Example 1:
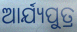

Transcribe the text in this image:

ଆର୍ଯ୍ୟପୁତ୍ର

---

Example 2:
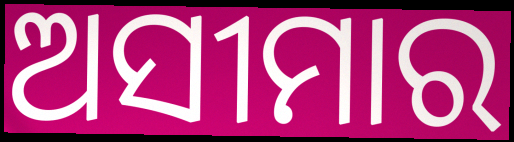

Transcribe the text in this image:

ଅସୀମାର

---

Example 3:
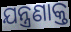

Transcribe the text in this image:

ଯନ୍ତ୍ରଣାକ୍ତ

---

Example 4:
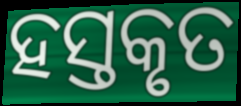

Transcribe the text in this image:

ହସ୍ତକୃତ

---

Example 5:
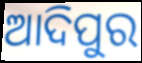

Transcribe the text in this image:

ଆଦିପୁର